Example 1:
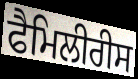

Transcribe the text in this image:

ਫੈਮਿਲੀਰੀਸ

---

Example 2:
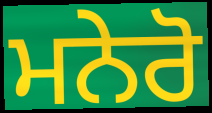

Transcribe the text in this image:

ਮਨੇਰੋ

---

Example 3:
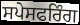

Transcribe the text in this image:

ਸਪੇਸਫਰਿੰਗ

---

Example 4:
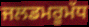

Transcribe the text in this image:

ਜਲਡਮਰੂਮੱਧ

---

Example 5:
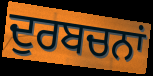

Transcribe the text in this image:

ਦੁਰਬਚਨਾਂ